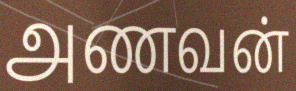
அணவன்